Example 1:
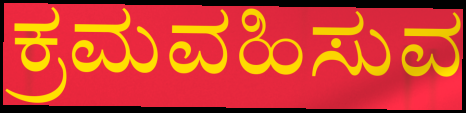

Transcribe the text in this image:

ಕ್ರಮವಹಿಸುವ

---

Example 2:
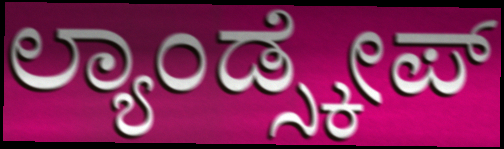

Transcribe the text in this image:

ಲ್ಯಾಂಡ್ಸ್ಕೇಪ್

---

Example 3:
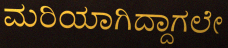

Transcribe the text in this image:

ಮರಿಯಾಗಿದ್ದಾಗಲೇ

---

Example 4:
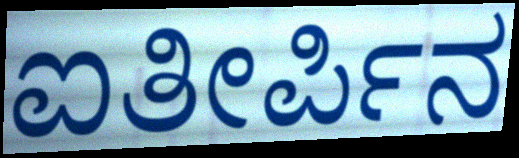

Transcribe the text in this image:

ಐತೀರ್ಪಿನ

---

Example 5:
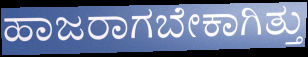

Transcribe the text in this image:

ಹಾಜರಾಗಬೇಕಾಗಿತ್ತು